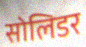
सोलिडर